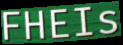
FHEIs